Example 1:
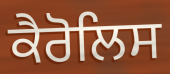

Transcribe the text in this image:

ਕੈਰੋਲਿਸ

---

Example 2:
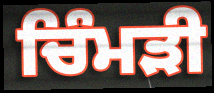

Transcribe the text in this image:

ਚਿੰਮੜੀ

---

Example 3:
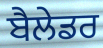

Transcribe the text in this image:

ਬੈਲੇਡਰ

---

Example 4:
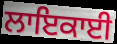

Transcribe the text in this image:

ਲਾਇਕਾਈ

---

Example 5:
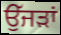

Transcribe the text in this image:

ਉੱਜੜਾਂ